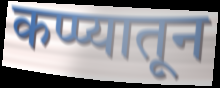
कप्प्यातून